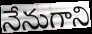
నేనుగాని